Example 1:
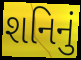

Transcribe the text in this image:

શનિનું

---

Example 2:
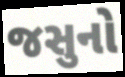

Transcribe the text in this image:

જસુનો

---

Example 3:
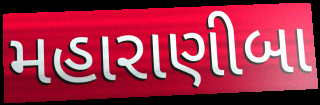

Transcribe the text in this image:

મહારાણીબા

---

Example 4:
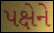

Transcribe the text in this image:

પક્ષેને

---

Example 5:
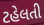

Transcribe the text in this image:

ટહેલતી